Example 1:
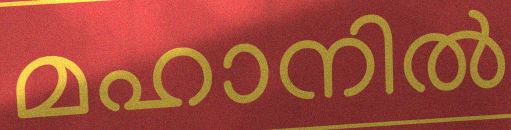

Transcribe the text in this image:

മഹാനിൽ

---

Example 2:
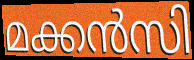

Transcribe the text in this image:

മക്കൻസി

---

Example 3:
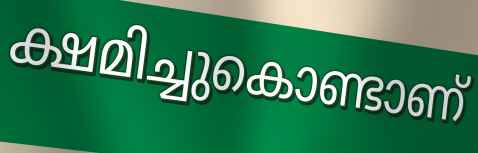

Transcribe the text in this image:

ക്ഷമിച്ചുകൊണ്ടാണ്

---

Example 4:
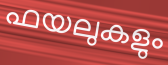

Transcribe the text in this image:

ഫയലുകളും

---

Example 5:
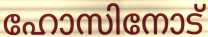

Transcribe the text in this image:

ഹോസിനോട്